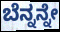
ಬೆನ್ನನ್ನೇ